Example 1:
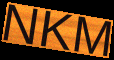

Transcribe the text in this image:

NKM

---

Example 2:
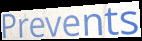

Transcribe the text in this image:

Prevents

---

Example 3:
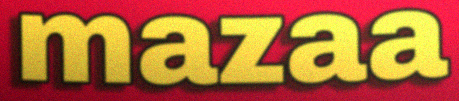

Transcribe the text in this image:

mazaa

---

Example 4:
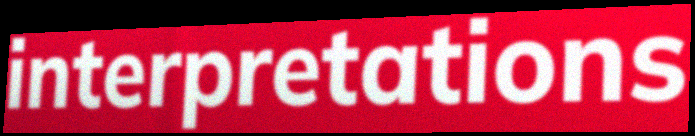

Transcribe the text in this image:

interpretations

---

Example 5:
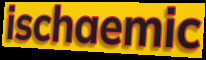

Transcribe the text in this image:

ischaemic